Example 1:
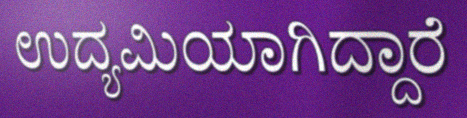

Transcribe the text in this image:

ಉದ್ಯಮಿಯಾಗಿದ್ದಾರೆ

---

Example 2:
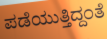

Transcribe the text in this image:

ಪಡೆಯುತ್ತಿದ್ದಂತೆ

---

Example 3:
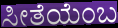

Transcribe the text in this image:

ಸೀತೆಯೆಂಬ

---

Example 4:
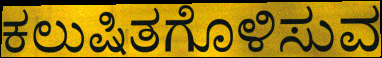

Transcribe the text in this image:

ಕಲುಷಿತಗೊಳಿಸುವ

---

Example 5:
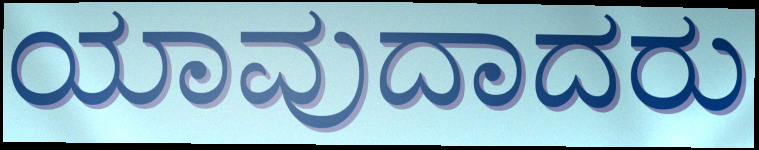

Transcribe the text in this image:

ಯಾವುದಾದರು